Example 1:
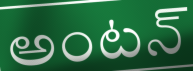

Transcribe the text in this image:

అంటన్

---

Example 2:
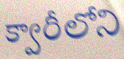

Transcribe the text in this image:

క్వారీలోని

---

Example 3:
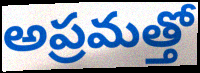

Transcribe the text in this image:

అప్రమత్తో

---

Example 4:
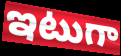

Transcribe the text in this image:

ఇటుగా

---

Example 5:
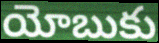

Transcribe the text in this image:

యోబుకు